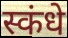
स्कंधे